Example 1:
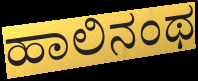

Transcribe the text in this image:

ಹಾಲಿನಂಥ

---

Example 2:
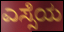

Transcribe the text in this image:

ಎಸ್ಸೆಯ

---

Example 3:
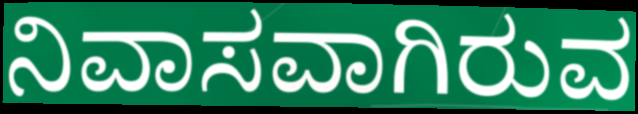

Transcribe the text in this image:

ನಿವಾಸವಾಗಿರುವ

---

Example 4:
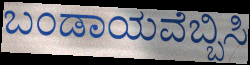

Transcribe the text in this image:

ಬಂಡಾಯವೆಬ್ಬಿಸಿ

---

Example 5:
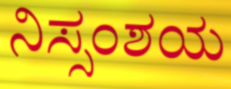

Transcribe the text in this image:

ನಿಸ್ಸಂಶಯ